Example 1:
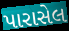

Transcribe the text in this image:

પારાસેલ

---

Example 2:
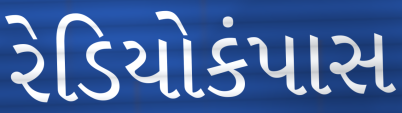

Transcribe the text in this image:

રેડિયોકંપાસ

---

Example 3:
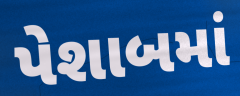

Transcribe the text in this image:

પેશાબમાં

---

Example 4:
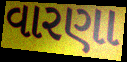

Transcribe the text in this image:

વારણા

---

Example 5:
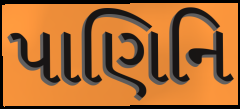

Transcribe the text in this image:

પાણિનિ